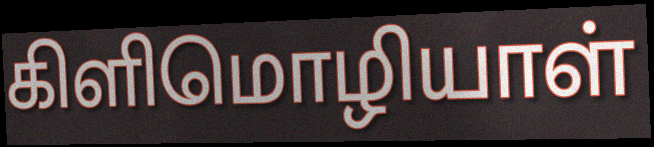
கிளிமொழியாள்